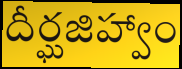
దీర్ఘజిహ్వాం